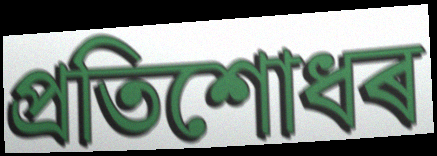
প্ৰতিশোধৰ